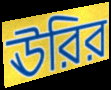
ঊরির